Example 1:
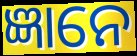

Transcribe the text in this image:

ଜ୍ଞାନେ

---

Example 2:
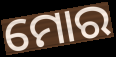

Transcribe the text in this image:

ମୋର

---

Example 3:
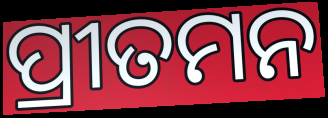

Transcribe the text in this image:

ପ୍ରୀତମନ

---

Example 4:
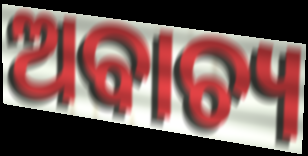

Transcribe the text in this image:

ଅବାଚ୍ୟ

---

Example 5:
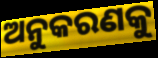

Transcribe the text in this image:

ଅନୁକରଣକୁ